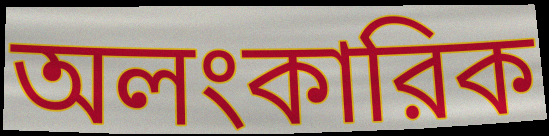
অলংকারিক